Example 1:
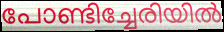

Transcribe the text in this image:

പോണ്ടിച്ചേരിയിൽ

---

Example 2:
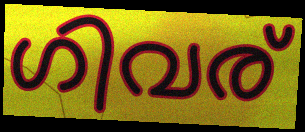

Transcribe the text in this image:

ഗിവര്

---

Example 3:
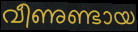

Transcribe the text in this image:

വീണുണ്ടായ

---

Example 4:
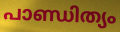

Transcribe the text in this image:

പാണ്ഡിത്യം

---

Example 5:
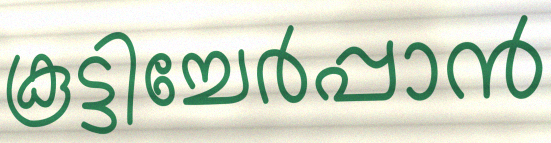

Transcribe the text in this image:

കൂട്ടിച്ചേർപ്പാൻ